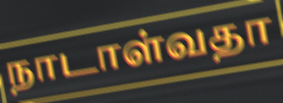
நாடாள்வதா